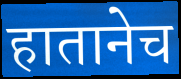
हातानेच